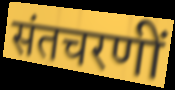
संतचरणीं